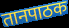
तानपाठक